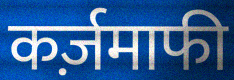
कर्ज़माफी